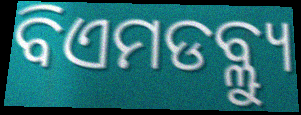
ବିଏମଡବ୍ଲ୍ୟୁ